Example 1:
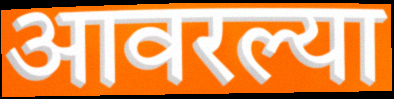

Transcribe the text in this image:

आवरल्या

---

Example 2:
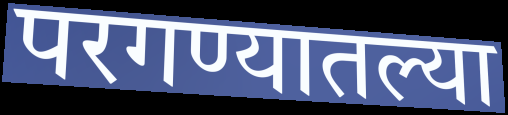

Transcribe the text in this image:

परगण्यातल्या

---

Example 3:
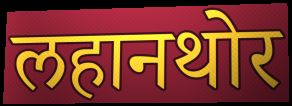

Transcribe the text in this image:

लहानथोर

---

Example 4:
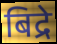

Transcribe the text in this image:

बिद्रे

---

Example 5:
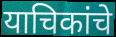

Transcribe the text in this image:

याचिकांचे